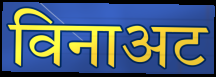
विनाअट